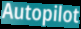
Autopilot